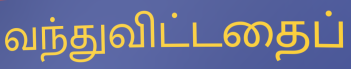
வந்துவிட்டதைப்